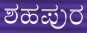
ಶಹಪುರ